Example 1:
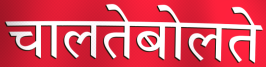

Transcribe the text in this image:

चालतेबोलते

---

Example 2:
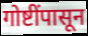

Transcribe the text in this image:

गोष्टींपासून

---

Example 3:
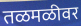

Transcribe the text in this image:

तळमळीवर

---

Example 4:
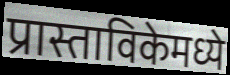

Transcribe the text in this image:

प्रास्ताविकेमध्ये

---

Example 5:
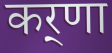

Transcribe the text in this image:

कर्णा